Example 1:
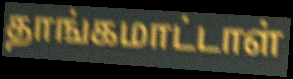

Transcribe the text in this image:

தாங்கமாட்டாள்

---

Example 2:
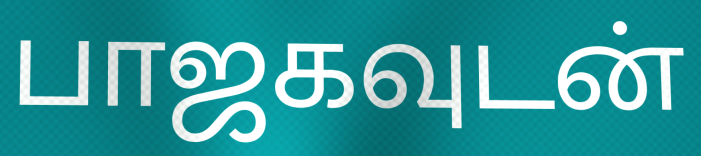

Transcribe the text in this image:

பாஜகவுடன்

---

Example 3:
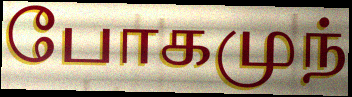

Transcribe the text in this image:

போகமுந்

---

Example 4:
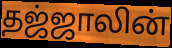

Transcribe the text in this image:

தஜ்ஜாலின்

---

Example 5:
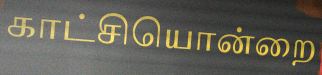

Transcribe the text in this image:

காட்சியொன்றை